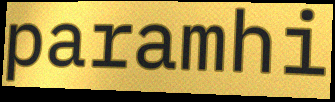
paramhi